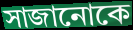
সাজানোকে